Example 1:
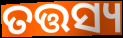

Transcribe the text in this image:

ତତ୍ତସ୍ୟ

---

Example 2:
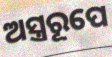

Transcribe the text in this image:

ଅସ୍ତ୍ରରୂପେ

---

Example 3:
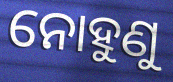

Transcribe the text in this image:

ନୋହୁଣୁ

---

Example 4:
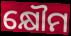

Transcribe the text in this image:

କ୍ଷୌମ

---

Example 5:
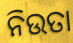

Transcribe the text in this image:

ନିଉତା